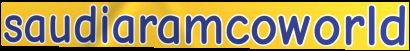
saudiaramcoworld